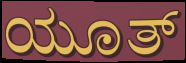
ಯೂತ್